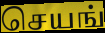
செயங்